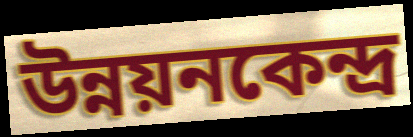
উন্নয়নকেন্দ্র